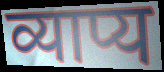
व्याप्य